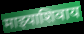
माझ्याशिवाय